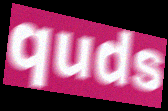
quds